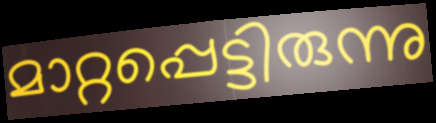
മാറ്റപ്പെട്ടിരുന്നു